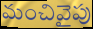
మంచివైపు